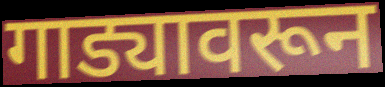
गाड्यावरून